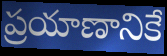
ప్రయాణానికే